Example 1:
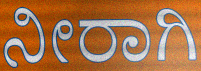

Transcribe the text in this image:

ನೀರಾಗಿ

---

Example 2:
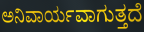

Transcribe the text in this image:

ಅನಿವಾರ್ಯವಾಗುತ್ತದೆ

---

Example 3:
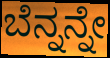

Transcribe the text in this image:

ಬೆನ್ನನ್ನೇ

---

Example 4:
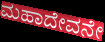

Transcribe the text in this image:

ಮಹಾದೇವನೇ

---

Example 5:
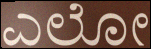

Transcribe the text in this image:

ಎಲೋ